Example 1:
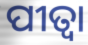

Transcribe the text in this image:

ପୀତ୍ବା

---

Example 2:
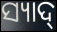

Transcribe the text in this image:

ସ୍ୟାଦ୍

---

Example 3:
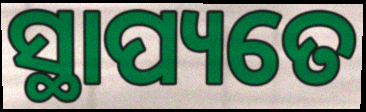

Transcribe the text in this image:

ସ୍ଥାପ୍ୟତେ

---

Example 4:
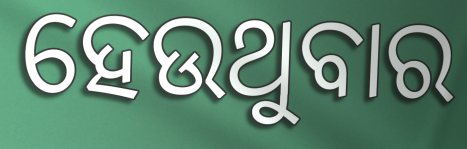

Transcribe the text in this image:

ହେଉଥୁବାର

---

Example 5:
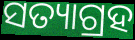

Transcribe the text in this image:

ସତ୍ୟାଗ୍ରହ